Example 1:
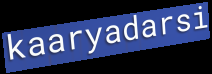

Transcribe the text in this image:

kaaryadarsi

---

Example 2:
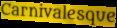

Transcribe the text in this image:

Carnivalesque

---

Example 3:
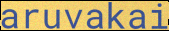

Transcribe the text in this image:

aruvakai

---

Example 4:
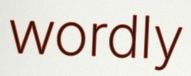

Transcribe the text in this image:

wordly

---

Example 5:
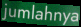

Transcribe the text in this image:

jumlahnya